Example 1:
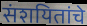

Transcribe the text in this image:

संशयितांचे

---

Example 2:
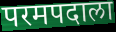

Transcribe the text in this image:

परमपदाला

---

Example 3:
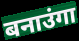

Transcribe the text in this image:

बनाउंगा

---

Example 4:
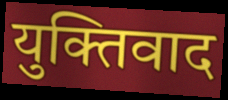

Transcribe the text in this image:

युक्तिवाद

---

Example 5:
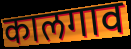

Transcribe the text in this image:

कालगाव